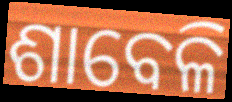
ଶାବେଳି